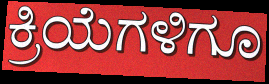
ಕ್ರಿಯೆಗಳಿಗೂ